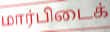
மார்பிடைக்